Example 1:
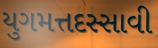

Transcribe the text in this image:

યુગમત્તદસ્સાવી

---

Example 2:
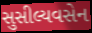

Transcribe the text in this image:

સુસીલ્યવસેન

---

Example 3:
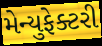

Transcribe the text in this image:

મેન્યુફેક્ટરી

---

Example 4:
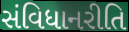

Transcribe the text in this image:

સંવિધાનરીતિ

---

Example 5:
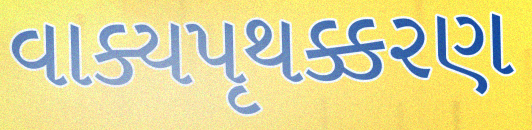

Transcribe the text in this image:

વાક્યપૃથક્કરણ